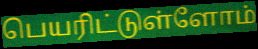
பெயரிட்டுள்ளோம்